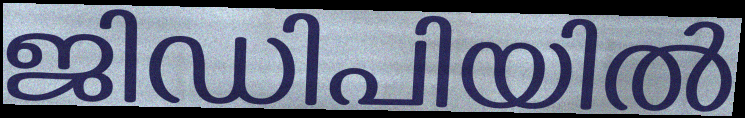
ജിഡിപിയിൽ